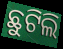
ଛୁଟିଲି